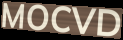
MOCVD